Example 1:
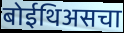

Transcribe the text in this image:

बोईथिअसचा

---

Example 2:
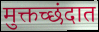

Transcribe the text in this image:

मुक्तच्छंदात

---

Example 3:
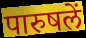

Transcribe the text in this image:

पारुषलें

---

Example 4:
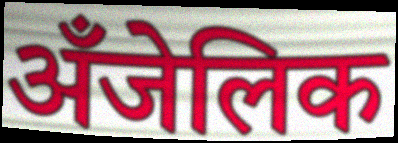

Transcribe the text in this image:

अँजेलिक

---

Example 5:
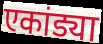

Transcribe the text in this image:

एकांड्या